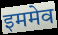
इममेव